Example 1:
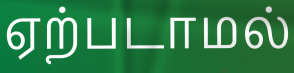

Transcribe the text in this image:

ஏற்படாமல்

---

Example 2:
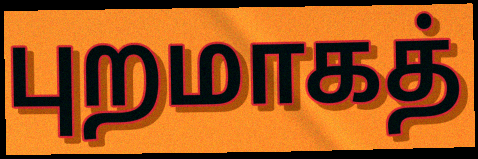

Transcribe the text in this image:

புறமாகத்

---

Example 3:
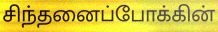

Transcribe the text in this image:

சிந்தனைப்போக்கின்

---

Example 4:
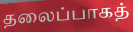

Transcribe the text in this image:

தலைப்பாகத்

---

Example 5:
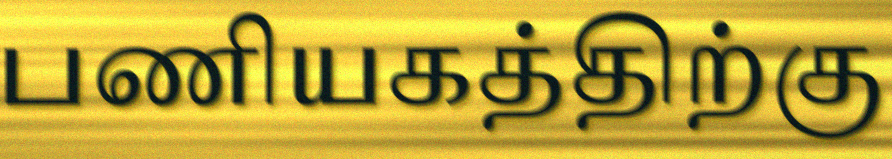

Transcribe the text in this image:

பணியகத்திற்கு